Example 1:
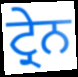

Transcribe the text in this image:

ਟ੍ਰੇਨ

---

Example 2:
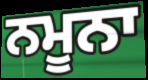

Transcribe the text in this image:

ਨਮੂਨਾ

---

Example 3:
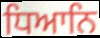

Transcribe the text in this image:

ਧਿਆਨਿ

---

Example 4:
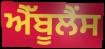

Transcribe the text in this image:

ਐੱਬੂਲੈਂਸ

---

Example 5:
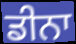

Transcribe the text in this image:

ਡੀਨਾ